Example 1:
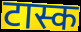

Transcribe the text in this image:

टास्क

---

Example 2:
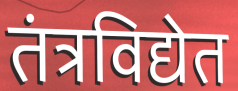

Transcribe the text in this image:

तंत्रविद्येत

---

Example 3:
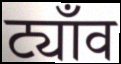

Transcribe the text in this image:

ट्याँव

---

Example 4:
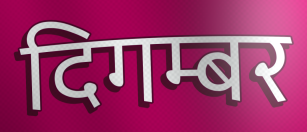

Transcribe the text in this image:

दिगम्बर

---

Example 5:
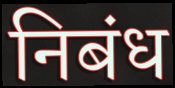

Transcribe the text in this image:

निबंध